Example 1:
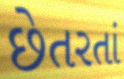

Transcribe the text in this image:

છેતરતાં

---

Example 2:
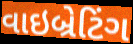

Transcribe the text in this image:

વાઇબ્રેટિંગ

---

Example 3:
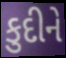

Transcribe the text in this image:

કુદીને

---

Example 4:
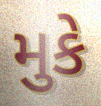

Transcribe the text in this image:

મુકે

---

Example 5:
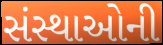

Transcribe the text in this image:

સંસ્થાઓની